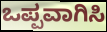
ಒಪ್ಪವಾಗಿಸಿ